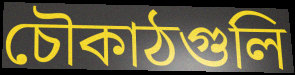
চৌকাঠগুলি